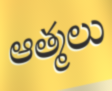
ఆత్మలు